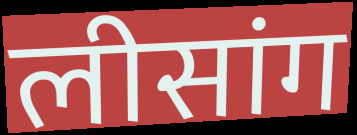
लीसांग